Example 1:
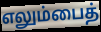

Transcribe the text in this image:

எலும்பைத்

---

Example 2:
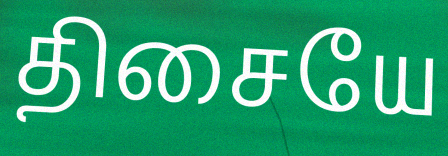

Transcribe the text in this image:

திசையே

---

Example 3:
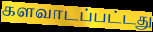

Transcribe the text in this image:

களவாடப்பட்டது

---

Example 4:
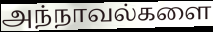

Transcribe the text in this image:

அந்நாவல்களை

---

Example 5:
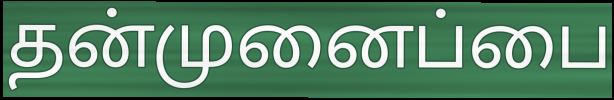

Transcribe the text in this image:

தன்முனைப்பை